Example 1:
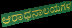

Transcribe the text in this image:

ಆರಾಧನಾಲಯಗಳ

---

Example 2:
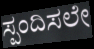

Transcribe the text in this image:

ಸ್ಪಂದಿಸಲೇ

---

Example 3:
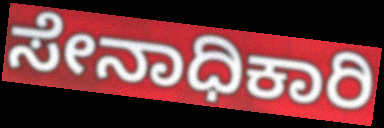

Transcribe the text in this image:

ಸೇನಾಧಿಕಾರಿ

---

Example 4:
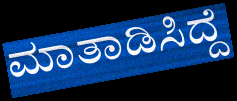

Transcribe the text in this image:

ಮಾತಾಡಿಸಿದ್ದೆ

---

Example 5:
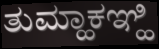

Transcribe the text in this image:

ತುಮ್ಹಾಕಞ್ಹಿ